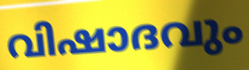
വിഷാദവും